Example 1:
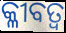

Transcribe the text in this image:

କ୍ଳୀବତ୍ବ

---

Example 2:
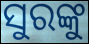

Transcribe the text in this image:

ସୁରଙ୍କୁ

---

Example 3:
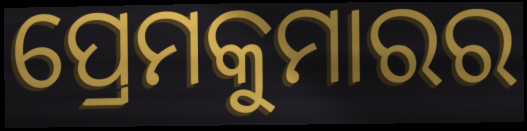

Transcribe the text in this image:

ପ୍ରେମକୁମାରର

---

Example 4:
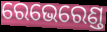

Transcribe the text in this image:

ରେଭେରେଣ୍ଡ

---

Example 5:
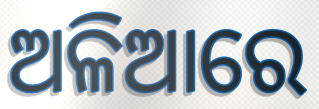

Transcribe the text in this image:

ଅଳିଆରେ